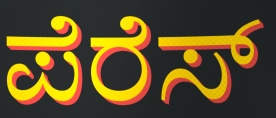
ಪೆರೆಸ್